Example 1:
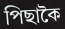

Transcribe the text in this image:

পিছাকৈ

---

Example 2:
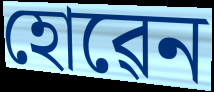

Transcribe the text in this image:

হোৱেন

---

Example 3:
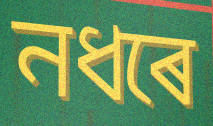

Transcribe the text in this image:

নধৰে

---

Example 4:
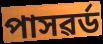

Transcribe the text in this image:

পাসৱৰ্ড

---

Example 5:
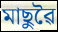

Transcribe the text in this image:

মাছুৱৈ